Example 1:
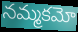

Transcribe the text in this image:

నమ్మకమో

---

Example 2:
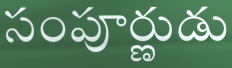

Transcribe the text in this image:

సంపూర్ణుడు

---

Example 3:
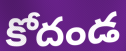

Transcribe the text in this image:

కోదండ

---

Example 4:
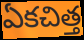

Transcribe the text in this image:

ఏకచిత్త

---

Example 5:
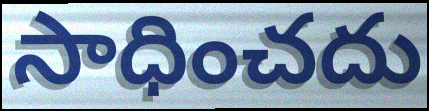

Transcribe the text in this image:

సాధించదు